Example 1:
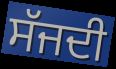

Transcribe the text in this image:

ਸੱਜਦੀ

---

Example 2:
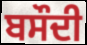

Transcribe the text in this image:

ਬਸੌਦੀ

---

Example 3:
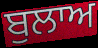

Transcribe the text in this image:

ਬੁਲਾਅ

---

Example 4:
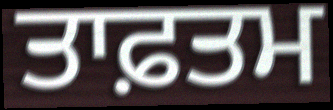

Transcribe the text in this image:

ਤਾਫ਼ਤਮ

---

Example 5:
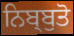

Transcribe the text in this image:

ਨਿਬ੍ਬੁਤੋ